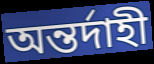
অন্তর্দাহী